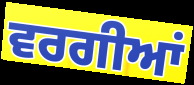
ਵਰਗੀਆਂ